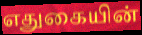
எதுகையின்